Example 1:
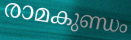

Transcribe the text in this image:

രാമകുണ്ഡം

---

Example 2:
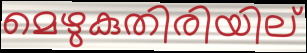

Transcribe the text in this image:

മെഴുകുതിരിയില്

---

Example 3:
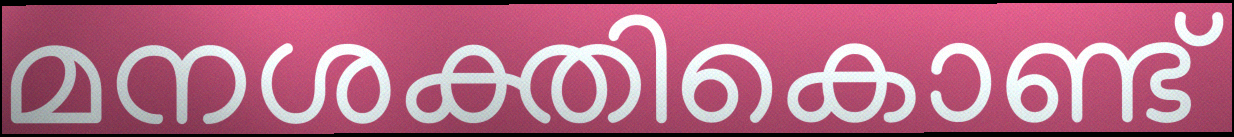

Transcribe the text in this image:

മനശക്തികൊണ്ട്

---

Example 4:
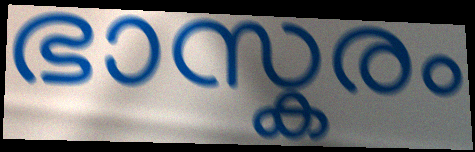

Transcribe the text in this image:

ഭാസ്കരം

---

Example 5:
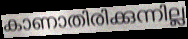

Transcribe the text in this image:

കാണാതിരിക്കുന്നില്ല